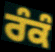
ਰੰਕੰ